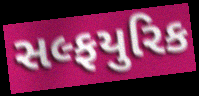
સલ્ફયુરિક